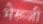
भेरूजी